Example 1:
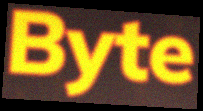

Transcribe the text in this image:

Byte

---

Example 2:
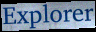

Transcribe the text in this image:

Explorer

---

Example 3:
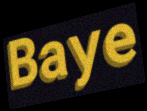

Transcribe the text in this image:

Baye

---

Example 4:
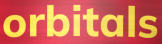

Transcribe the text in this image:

orbitals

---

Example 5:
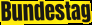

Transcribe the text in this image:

Bundestag